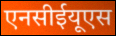
एनसीईयूएस